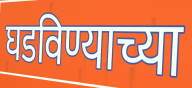
घडविण्याच्या